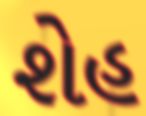
શેહ